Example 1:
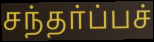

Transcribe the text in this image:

சந்தர்ப்பச்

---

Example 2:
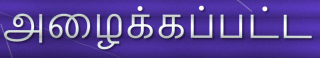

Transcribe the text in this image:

அழைக்கப்பட்ட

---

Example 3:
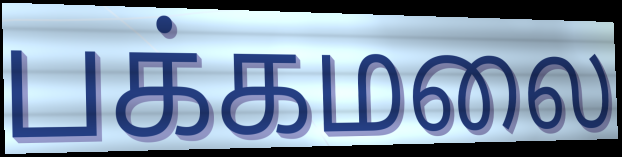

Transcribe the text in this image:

பக்கமலை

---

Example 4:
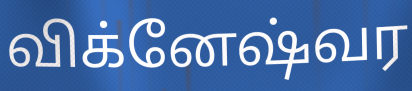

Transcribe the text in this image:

விக்னேஷ்வர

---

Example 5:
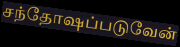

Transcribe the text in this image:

சந்தோஷப்படுவேன்